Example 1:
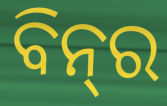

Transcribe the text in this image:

ବିନ୍‍ର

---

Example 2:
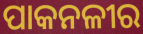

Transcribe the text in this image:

ପାକନଳୀର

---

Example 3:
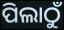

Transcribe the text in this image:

ପିଲାଠୁଁ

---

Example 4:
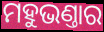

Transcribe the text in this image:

ମହୁଭଣ୍ତାର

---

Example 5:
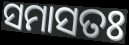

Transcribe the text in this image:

ସମାସତଃ